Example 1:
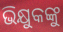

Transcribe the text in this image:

ଭିକ୍ଷୁକଙ୍କୁ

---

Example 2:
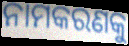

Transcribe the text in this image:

ନାମକରଣକୁ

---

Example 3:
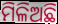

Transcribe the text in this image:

ମିଳିଅଛି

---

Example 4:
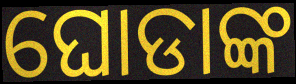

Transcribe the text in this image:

ଘୋଡାଙ୍କ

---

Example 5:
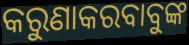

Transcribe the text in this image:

କରୁଣାକରବାବୁଙ୍କ